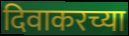
दिवाकरच्या